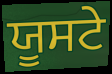
ਯੂਸਟੇ